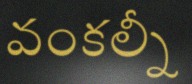
వంకల్నీ